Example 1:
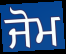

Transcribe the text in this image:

ਜੋਮ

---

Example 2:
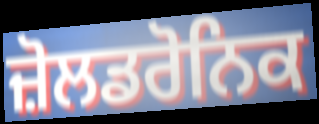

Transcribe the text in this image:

ਜ਼ੋਲਡਰੋਨਿਕ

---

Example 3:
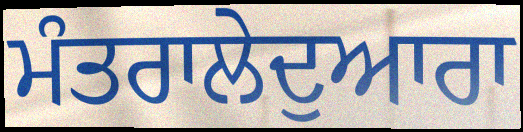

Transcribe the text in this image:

ਮੰਤਰਾਲੇਦੁਆਰਾ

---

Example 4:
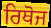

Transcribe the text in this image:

ਰਿਥੋਜ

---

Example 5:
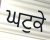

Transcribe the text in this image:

ਘਟੁਕੇ